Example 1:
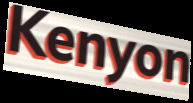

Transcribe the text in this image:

Kenyon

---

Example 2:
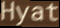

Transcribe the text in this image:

Hyat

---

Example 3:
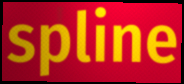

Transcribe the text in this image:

spline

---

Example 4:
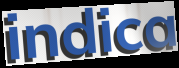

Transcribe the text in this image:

indica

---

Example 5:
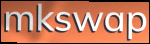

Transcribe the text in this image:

mkswap